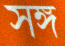
সঙ্গ